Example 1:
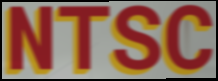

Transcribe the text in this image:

NTSC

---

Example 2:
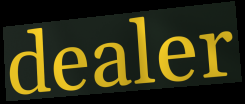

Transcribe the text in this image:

dealer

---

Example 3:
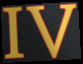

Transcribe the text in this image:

IV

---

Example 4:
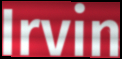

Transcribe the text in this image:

Irvin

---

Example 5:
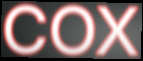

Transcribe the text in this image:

COX